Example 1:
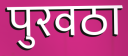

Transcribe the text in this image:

पुरवठा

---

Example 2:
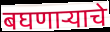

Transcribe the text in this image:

बघणाऱ्याचे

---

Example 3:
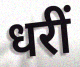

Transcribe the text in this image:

धरीं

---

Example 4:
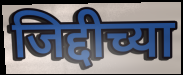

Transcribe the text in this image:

जिद्दीच्या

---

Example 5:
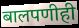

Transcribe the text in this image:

बालपणीही